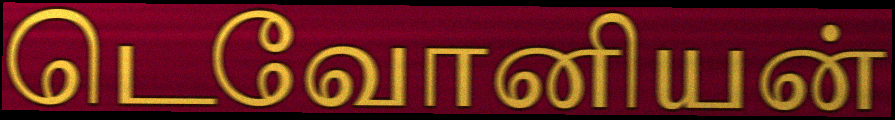
டெவோனியன்